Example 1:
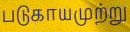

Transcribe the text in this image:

படுகாயமுற்று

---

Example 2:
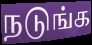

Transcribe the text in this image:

நடுங்க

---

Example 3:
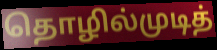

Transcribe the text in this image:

தொழில்முடித்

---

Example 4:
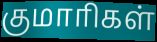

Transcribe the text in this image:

குமாரிகள்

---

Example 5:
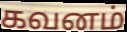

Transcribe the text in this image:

கவனம்